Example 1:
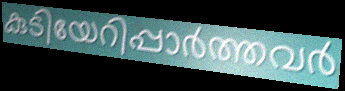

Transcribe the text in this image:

കുടിയേറിപ്പാർത്തവർ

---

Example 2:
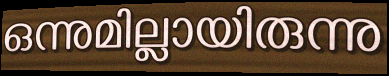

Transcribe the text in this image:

ഒന്നുമില്ലായിരുന്നു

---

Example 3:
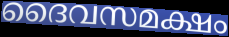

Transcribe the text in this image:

ദൈവസമക്ഷം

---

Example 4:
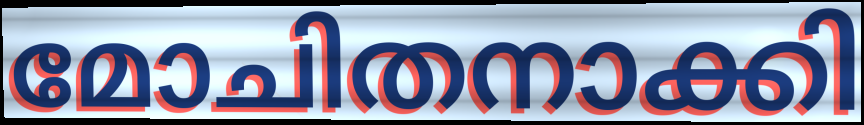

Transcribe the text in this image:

മോചിതനാക്കി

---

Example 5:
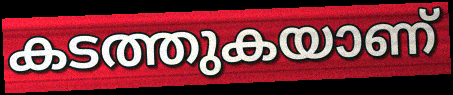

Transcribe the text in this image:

കടത്തുകയാണ്